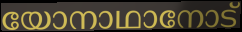
യോനാഥാനോട്